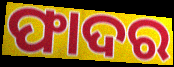
ଫାଦର